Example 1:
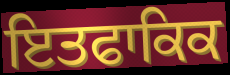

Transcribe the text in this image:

ਇਤਫਾਕਿਕ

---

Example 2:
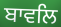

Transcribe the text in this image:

ਬਾਵਲਿ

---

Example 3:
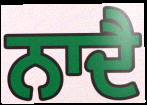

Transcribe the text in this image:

ਨਾਦੈ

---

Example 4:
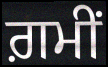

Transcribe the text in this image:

ਗ਼ਮੀਂ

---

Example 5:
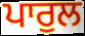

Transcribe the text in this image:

ਪਾਰੁਲ